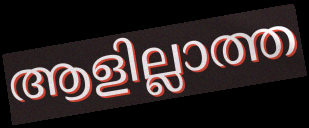
ആളില്ലാത്ത